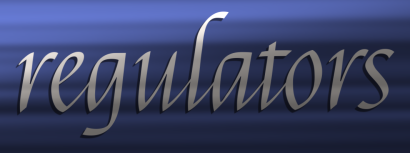
regulators